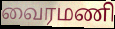
வைரமணி